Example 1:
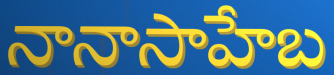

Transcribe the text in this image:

నానాసాహేబ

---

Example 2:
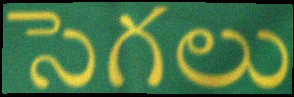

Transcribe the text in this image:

సెగలు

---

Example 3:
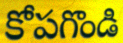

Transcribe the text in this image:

కోపగొండి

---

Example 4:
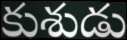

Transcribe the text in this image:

కుశుడు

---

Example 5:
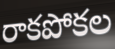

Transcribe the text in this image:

రాకపోకల